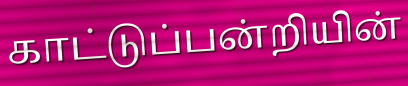
காட்டுப்பன்றியின்